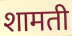
शामती